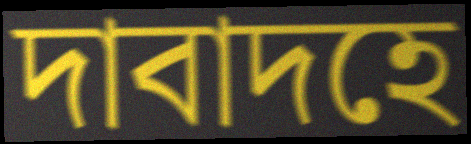
দাবাদহে